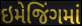
ઇમેજિંગમાં